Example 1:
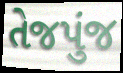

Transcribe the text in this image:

તેજપુંજ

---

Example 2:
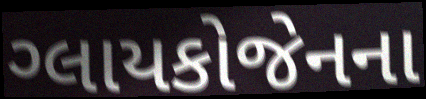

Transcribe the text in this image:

ગ્લાયકોજેનના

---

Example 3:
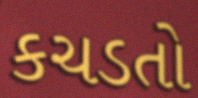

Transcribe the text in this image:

કચડતો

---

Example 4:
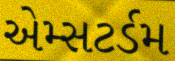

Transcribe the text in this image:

એમ્સટર્ડમ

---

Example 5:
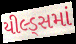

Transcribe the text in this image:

યીલ્ડ્સમાં